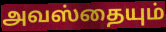
அவஸ்தையும்